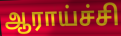
ஆராய்ச்சி